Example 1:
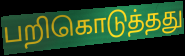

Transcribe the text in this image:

பறிகொடுத்தது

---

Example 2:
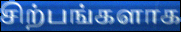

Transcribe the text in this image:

சிற்பங்களாக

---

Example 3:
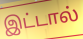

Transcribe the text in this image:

இட்டால்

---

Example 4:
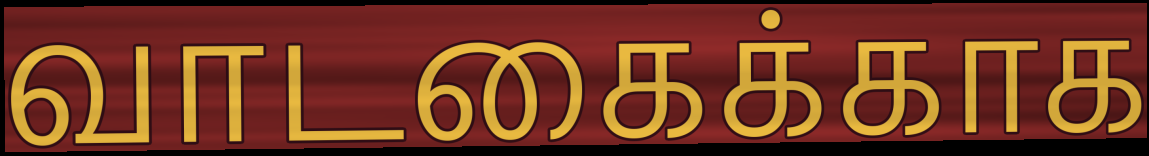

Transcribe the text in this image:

வாடகைக்காக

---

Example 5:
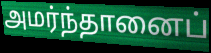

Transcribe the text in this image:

அமர்ந்தானைப்